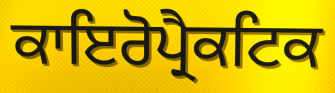
ਕਾਇਰੋਪ੍ਰੈਕਟਿਕ